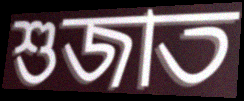
শুজাত